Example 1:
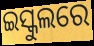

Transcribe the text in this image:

ଇସ୍କୁଲରେ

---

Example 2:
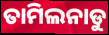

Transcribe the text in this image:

ତାମିଲନାଡୁ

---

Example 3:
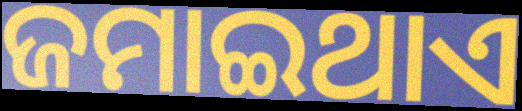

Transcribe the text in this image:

ଜମାଇଥାଏ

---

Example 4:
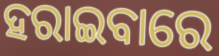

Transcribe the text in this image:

ହରାଇବାରେ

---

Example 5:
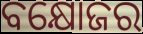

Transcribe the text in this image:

ବକ୍ଷୋଜର